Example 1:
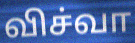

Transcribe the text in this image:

விச்வா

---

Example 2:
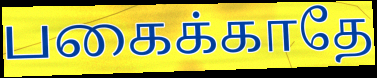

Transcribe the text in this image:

பகைக்காதே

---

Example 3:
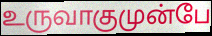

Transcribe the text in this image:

உருவாகுமுன்பே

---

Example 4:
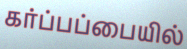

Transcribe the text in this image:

கர்ப்பப்பையில்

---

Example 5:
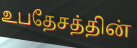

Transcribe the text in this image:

உபதேசத்தின்